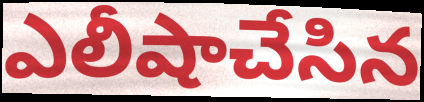
ఎలీషాచేసిన